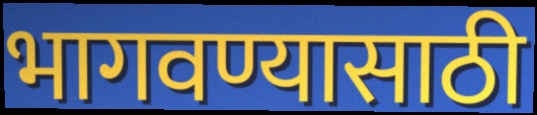
भागवण्यासाठी